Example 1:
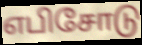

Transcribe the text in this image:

எபிசோடு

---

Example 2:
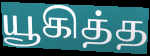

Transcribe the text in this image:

யூகித்த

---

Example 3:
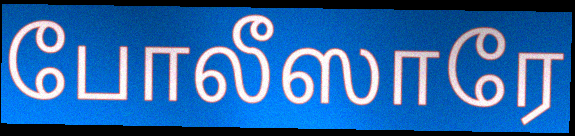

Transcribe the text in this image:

போலீஸாரே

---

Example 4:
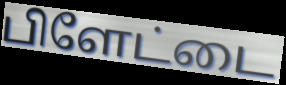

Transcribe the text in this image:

பிளேட்டை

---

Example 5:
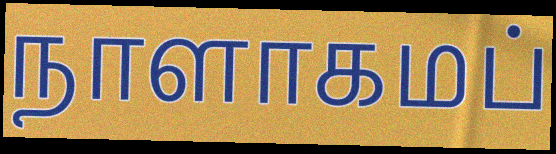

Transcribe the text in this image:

நாளாகமப்